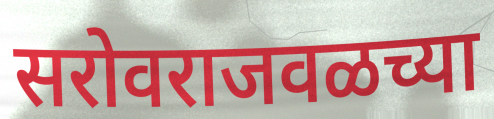
सरोवराजवळच्या